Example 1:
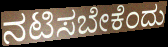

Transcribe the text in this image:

ನಟಿಸಬೇಕೆಂದು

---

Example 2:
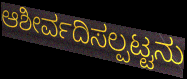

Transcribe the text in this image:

ಆಶೀರ್ವದಿಸಲ್ಪಟ್ಟನು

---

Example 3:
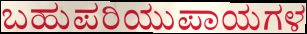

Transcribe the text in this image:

ಬಹುಪರಿಯುಪಾಯಗಳ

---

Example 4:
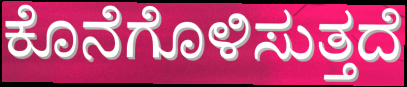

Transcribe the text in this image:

ಕೊನೆಗೊಳಿಸುತ್ತದೆ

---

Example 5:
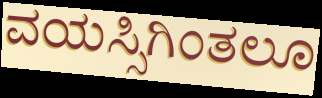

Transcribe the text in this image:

ವಯಸ್ಸಿಗಿಂತಲೂ